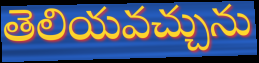
తెలియవచ్చును